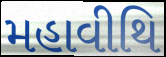
મહાવીથિ